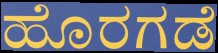
ಹೊರಗಡೆ